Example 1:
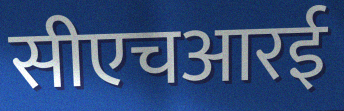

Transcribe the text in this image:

सीएचआरई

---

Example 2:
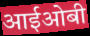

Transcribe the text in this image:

आईओबी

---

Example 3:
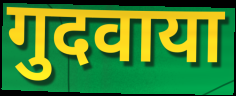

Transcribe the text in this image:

गुदवाया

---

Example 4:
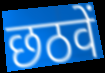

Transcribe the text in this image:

छठवें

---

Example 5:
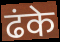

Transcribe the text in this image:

ढंके